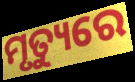
ମୃତ୍ୟୁରେ